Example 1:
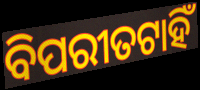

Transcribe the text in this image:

ବିପରୀତଟାହିଁ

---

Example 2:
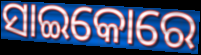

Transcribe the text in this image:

ସାଇକୋରେ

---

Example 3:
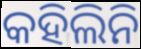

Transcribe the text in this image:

କହିଲିନି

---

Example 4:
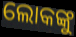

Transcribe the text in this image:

ଲୋକଙ୍କୁ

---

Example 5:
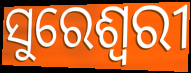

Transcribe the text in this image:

ସୁରେଶ୍ଵରୀ